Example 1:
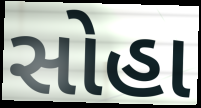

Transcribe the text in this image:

સોહા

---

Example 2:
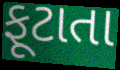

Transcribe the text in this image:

ફૂટાતા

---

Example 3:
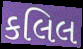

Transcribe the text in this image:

કલિલ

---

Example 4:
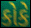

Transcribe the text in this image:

કોકે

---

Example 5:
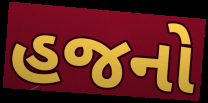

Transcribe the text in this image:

હજનો